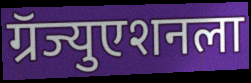
ग्रॅज्युएशनला